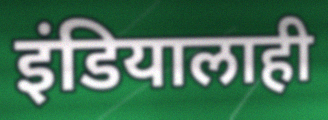
इंडियालाही